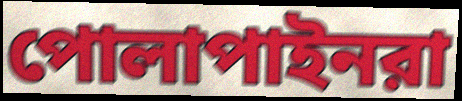
পোলাপাইনরা